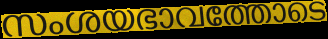
സംശയഭാവത്തോടെ